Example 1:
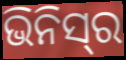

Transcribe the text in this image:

ଭିନିସ୍‌ର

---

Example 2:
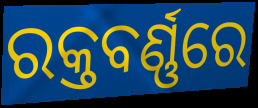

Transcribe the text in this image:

ରକ୍ତବର୍ଣ୍ଣରେ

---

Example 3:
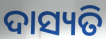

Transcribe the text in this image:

ଦାସ୍ୟତି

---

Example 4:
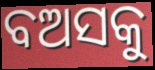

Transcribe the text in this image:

ବଅସକୁ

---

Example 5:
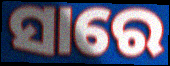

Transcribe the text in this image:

ସାରେ